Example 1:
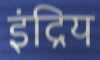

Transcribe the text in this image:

इंद्रिय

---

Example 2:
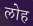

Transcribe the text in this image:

लोह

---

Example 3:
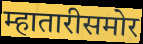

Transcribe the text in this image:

म्हातारीसमोर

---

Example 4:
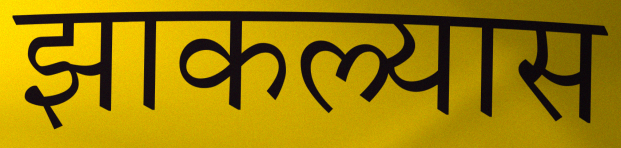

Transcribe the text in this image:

झाकल्यास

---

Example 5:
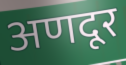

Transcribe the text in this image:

अणदूर